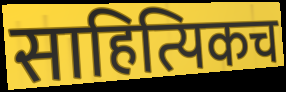
साहित्यिकच